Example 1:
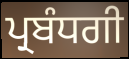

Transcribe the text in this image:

ਪ੍ਰਬੰਧਗੀ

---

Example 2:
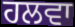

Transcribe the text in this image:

ਹਲਵਾ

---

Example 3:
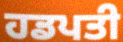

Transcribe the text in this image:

ਹਡਪਤੀ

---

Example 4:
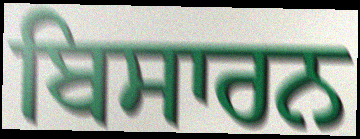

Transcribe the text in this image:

ਬਿਸਾਰਨ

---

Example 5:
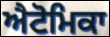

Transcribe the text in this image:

ਐਟੋਮਿਕਾ